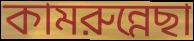
কামরুন্নেছা